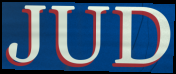
JUD